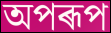
অপৰূপ